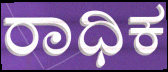
ರಾಧಿಕ